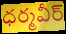
ధర్మవీర్